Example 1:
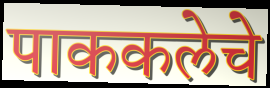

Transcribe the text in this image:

पाककलेचे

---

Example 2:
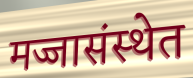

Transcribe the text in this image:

मज्जासंस्थेत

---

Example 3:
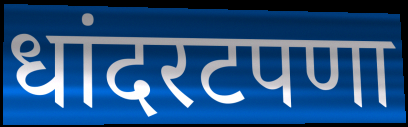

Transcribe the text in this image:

धांदरटपणा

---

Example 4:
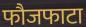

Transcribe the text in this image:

फौजफाटा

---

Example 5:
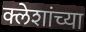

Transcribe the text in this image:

क्लेशांच्या